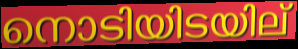
നൊടിയിടയില്